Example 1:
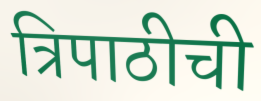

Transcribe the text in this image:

त्रिपाठीची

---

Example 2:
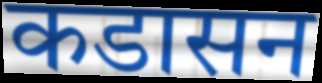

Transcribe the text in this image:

कडासन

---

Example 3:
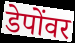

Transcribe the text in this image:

डेपोंवर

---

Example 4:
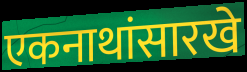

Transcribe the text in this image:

एकनाथांसारखे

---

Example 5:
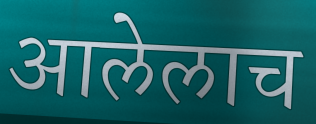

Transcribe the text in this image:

आलेलाच